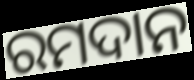
ରମଦାନ